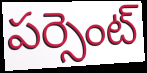
పర్సెంట్